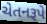
ચેતનરૂપે